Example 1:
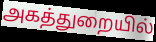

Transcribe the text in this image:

அகத்துறையில்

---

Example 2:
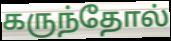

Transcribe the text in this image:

கருந்தோல்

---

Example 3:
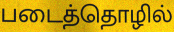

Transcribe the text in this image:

படைத்தொழில்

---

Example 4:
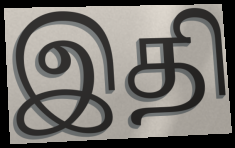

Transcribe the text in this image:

இதி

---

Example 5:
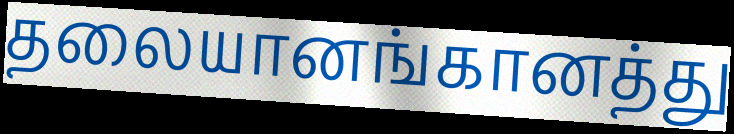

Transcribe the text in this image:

தலையானங்கானத்து